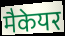
मैकेयर